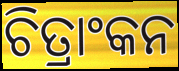
ଚିତ୍ରାଂକନ